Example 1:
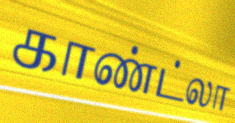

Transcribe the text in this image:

காண்ட்லா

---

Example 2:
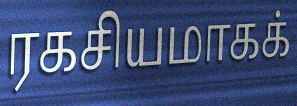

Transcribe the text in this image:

ரகசியமாகக்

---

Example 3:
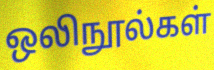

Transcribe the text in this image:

ஒலிநூல்கள்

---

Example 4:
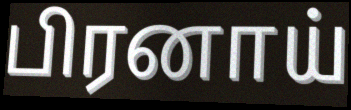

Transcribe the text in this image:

பிரனாய்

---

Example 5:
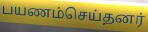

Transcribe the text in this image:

பயணம்செய்தனர்